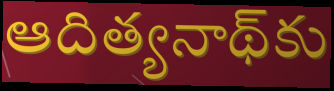
ఆదిత్యనాథ్‌కు